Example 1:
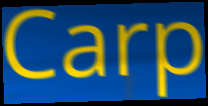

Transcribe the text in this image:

Carp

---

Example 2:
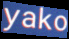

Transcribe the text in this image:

yako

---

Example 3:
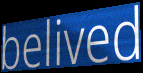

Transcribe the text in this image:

belived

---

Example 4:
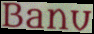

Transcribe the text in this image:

Banu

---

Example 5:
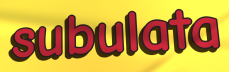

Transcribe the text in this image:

subulata